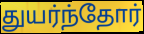
துயர்ந்தோர்